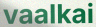
vaalkai